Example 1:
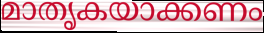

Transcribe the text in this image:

മാതൃകയാക്കണം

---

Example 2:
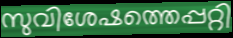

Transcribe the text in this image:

സുവിശേഷത്തെപ്പറ്റി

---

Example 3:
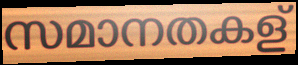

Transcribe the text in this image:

സമാനതകള്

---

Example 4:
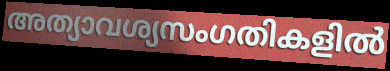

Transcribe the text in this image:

അത്യാവശ്യസംഗതികളിൽ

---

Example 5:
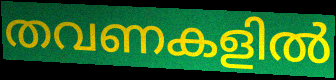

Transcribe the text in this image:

തവണകളിൽ